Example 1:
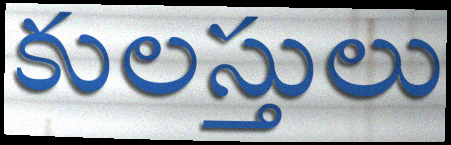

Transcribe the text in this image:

కులస్తులు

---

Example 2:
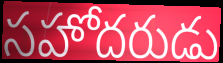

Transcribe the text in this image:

సహోదరుడు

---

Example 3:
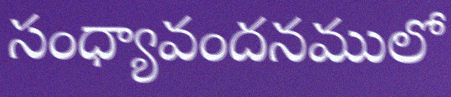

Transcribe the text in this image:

సంధ్యావందనములో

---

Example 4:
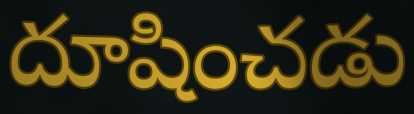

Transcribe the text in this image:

దూషించడు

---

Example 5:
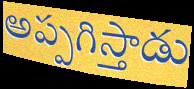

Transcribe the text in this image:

అప్పగిస్తాడు